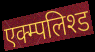
एक्म्पलिश्ड